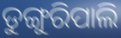
ଡୁଙ୍ଗୁରିପାଲି